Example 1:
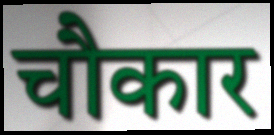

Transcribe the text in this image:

चौकार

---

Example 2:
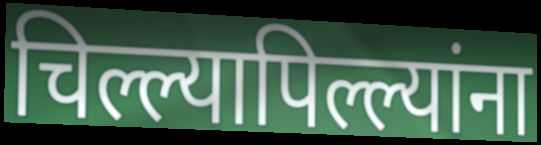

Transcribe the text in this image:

चिल्ल्यापिल्ल्यांना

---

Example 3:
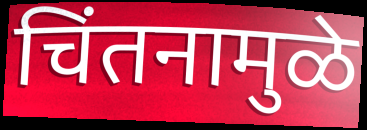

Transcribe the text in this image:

चिंतनामुळे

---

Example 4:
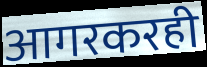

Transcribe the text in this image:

आगरकरही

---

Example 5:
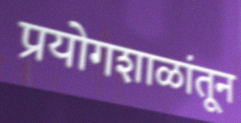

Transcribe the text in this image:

प्रयोगशाळांतून